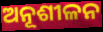
ଅନୂଶୀଳନ